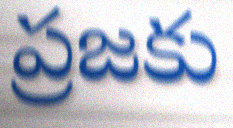
ప్రజకు